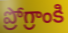
ప్రోగ్రాంకి